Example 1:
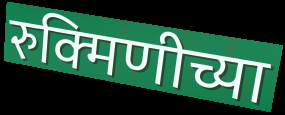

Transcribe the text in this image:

रुक्मिणीच्या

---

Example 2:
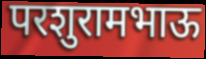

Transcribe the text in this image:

परशुरामभाऊ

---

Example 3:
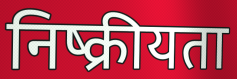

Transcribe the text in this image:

निष्क्रीयता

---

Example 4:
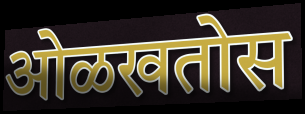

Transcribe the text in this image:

ओळखतोस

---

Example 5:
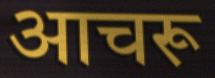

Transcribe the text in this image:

आचरू